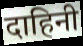
दाहिनी